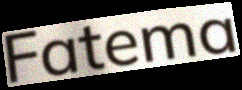
Fatema